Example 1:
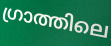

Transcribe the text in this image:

ഗ്രാത്തിലെ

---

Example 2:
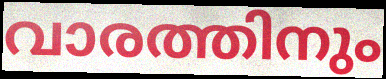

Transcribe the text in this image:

വാരത്തിനും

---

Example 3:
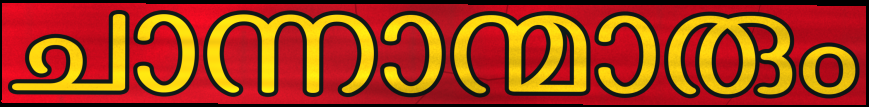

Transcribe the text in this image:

ചാന്നാന്മാരും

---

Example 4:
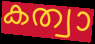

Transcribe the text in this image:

കത്വാ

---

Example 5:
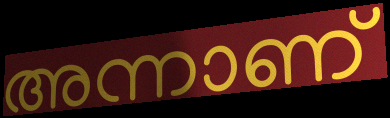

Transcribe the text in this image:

അന്നാണ്